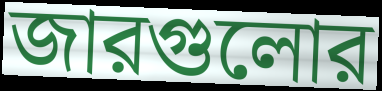
জারগুলোর